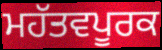
ਮਹੱਤਵਪੂਰਕ